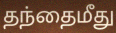
தந்தைமீது